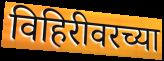
विहिरीवरच्या